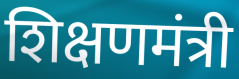
शिक्षणमंत्री